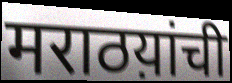
मराठय़ांची